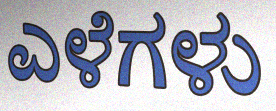
ಎಳೆಗಳು